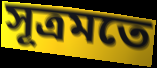
সূত্রমতে